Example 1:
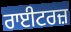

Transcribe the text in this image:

ਰਾਈਟਰਜ਼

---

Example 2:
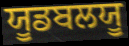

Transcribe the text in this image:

ਯੂਡਬਲਯੂ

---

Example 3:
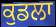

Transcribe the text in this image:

ਕੁਡਲਾ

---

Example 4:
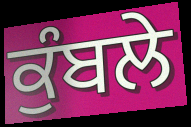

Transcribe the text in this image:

ਕੁੰਬਲੇ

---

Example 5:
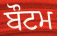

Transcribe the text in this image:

ਬੌਟਮ